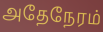
அதேநேரம்